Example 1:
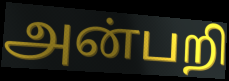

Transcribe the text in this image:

அன்பறி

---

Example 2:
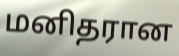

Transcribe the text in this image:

மனிதரான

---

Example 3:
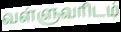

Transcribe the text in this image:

வள்ளுவரிடம்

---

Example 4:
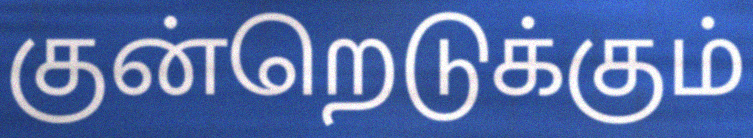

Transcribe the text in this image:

குன்றெடுக்கும்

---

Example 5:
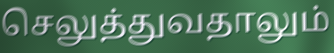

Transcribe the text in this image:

செலுத்துவதாலும்